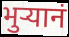
भुऱ्यानं